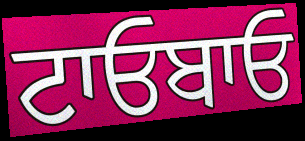
ਟਾਓਬਾਓ